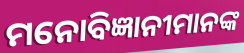
ମନୋବିଜ୍ଞାନୀମାନଙ୍କ